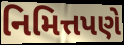
નિમિત્તપણે